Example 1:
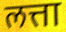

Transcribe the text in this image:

लत्ता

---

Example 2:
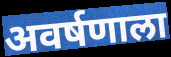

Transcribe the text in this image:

अवर्षणाला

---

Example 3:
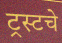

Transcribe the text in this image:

ट्रस्टचे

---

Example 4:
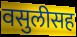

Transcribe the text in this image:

वसुलीसह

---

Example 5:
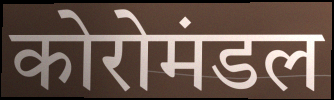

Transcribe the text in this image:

कोरोमंडल